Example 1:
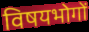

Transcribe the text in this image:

विषयभोगों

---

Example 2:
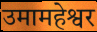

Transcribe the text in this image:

उमामहेश्वर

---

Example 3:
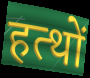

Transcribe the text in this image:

हत्थों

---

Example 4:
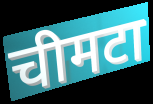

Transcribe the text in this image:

चीमटा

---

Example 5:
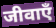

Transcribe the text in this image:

जीवाएँ